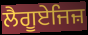
ਲੈਗੂਏਜਿਜ਼